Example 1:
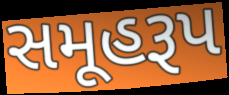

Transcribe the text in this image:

સમૂહરૂપ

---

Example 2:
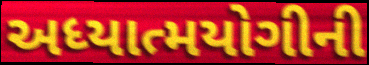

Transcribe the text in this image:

અધ્યાત્મયોગીની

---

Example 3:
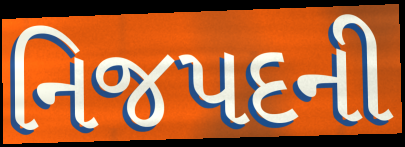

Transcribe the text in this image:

નિજપદની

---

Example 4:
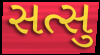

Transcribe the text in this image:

સત્સુ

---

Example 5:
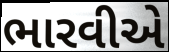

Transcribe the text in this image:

ભારવીએ